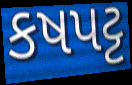
કષપટ્ટ